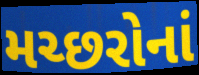
મચ્છરોનાં